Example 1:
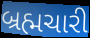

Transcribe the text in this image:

બ્રહ્મચારી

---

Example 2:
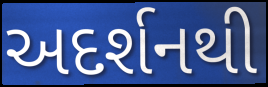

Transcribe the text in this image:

અદર્શનથી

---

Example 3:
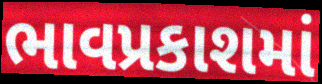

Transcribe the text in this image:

ભાવપ્રકાશમાં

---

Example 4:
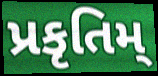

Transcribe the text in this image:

પ્રકૃતિમ્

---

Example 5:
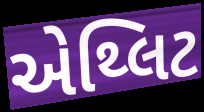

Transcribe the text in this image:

એથ્લિટ